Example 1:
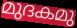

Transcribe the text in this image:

മുദകമു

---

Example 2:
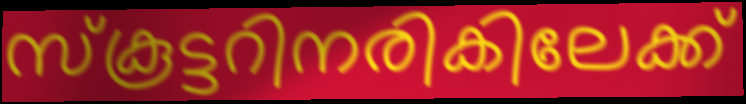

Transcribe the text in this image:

സ്കൂട്ടറിനരികിലേക്ക്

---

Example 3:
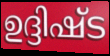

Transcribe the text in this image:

ഉദ്ദിഷ്ട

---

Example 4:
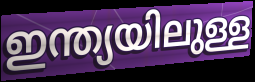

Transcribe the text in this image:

ഇന്ത്യയിലുള്ള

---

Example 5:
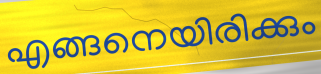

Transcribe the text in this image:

എങ്ങനെയിരിക്കും